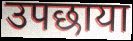
उपछाया